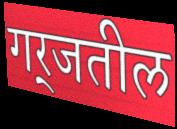
गर्जतील